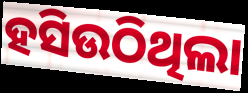
ହସିଉଠିଥିଲା